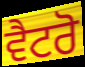
ਵੈਟਰੋ